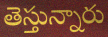
తెస్తున్నారు